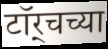
टॉर्चच्या